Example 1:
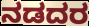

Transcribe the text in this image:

ನಡದರ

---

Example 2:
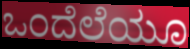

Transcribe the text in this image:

ಒಂದೆಲೆಯೂ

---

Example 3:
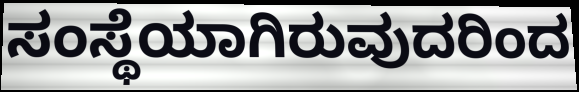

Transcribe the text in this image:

ಸಂಸ್ಥೆಯಾಗಿರುವುದರಿಂದ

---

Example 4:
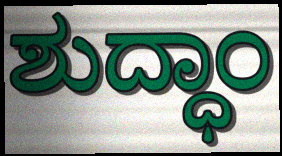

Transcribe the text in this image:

ಶುದ್ಧಾಂ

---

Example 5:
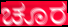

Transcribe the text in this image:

ಚೂರ